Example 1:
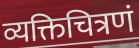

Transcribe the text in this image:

व्यक्तिचित्रणं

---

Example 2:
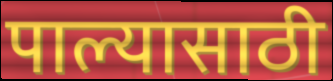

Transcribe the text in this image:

पाल्यासाठी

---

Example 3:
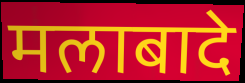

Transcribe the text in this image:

मलाबादे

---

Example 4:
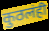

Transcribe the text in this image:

कुठलंही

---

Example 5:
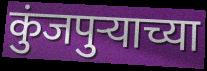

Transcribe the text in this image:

कुंजपुऱ्याच्या